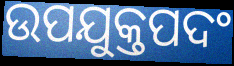
ଉପଯୁକ୍ତପଦଂ